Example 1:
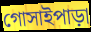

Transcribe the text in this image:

গোসাইপাড়া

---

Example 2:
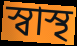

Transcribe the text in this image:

স্বাস্থ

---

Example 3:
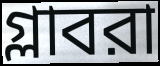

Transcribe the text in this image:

গ্লাবরা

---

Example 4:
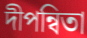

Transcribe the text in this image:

দীপন্বিতা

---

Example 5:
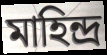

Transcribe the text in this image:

মাহিন্দ্র